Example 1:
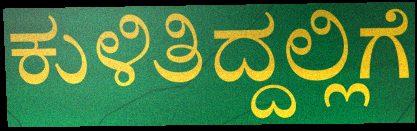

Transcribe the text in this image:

ಕುಳಿತಿದ್ದಲ್ಲಿಗೆ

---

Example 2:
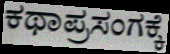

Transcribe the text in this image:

ಕಥಾಪ್ರಸಂಗಕ್ಕೆ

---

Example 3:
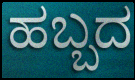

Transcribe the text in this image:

ಹಬ್ಬದ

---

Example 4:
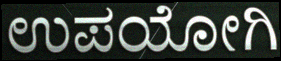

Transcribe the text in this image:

ಉಪಯೋಗಿ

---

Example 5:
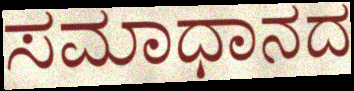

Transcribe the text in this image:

ಸಮಾಧಾನದ